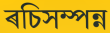
ৰচিসম্পন্ন